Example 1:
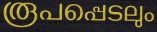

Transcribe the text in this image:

രൂപപ്പെടലും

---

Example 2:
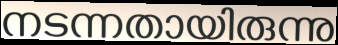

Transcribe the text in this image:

നടന്നതായിരുന്നു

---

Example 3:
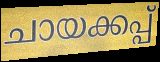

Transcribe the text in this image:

ചായക്കപ്പ്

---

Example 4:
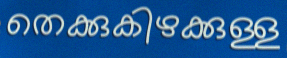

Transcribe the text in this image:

തെക്കുകിഴക്കുള്ള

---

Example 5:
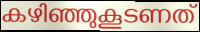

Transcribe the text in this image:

കഴിഞ്ഞുകൂടണത്